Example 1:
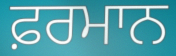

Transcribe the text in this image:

ਫ਼ਰਮਾਨ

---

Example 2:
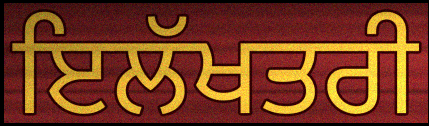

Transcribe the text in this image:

ਇਲੱਖਤਰੀ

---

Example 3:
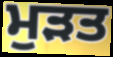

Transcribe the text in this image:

ਮੁੜਤ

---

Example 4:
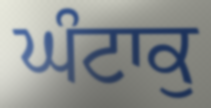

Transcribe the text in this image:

ਘੰਟਾਕੁ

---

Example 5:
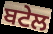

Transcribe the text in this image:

ਬਟੇਲ